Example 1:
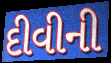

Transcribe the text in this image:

દીવીની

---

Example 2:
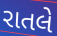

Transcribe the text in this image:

રાતલે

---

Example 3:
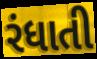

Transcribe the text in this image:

રંધાતી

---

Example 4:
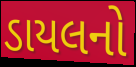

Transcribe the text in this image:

ડાયલનો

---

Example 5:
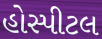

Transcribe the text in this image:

હોસ્પીટલ